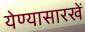
येण्यासारखें